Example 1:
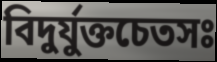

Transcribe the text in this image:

বিদুর্যুক্তচেতসঃ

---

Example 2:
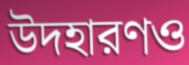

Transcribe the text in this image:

উদহারণও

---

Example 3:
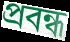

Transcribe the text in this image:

প্রবন্ধ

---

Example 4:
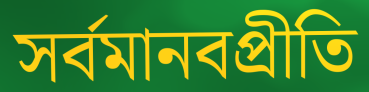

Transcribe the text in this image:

সর্বমানবপ্রীতি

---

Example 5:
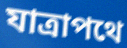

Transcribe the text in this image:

যাত্রাপথে